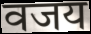
वजय